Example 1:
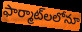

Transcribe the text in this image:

ఫార్మాట్‌లలోనూ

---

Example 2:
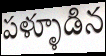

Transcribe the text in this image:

పళ్ళూడిన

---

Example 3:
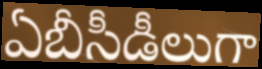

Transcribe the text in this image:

ఏబీసీడీలుగా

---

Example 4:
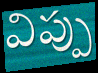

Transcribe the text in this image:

విప్పు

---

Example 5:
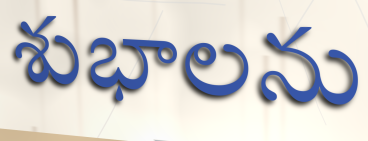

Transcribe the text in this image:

శుభాలను